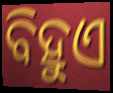
ବିହୁଏ